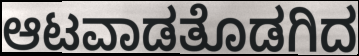
ಆಟವಾಡತೊಡಗಿದ